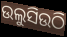
ଉଲୁସିଉଠି